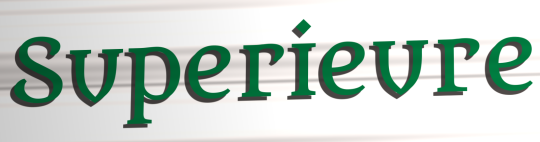
Superieure